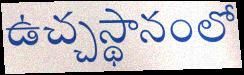
ఉచ్చస్థానంలో